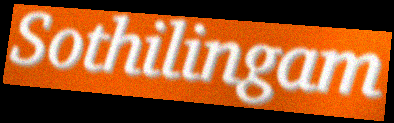
Sothilingam